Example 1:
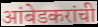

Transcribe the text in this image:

आंबेडकरांची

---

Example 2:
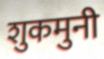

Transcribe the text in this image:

शुकमुनी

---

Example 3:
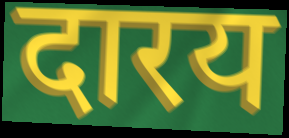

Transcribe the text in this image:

दारय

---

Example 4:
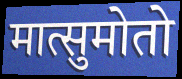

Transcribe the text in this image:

मात्सुमोतो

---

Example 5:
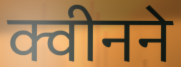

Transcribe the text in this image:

क्वीनने